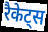
रैकेट्स